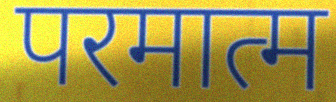
परमात्म